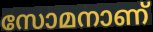
സോമനാണ്